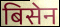
बिसेन